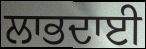
ਲਾਭਦਾਈ